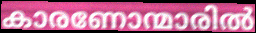
കാരണോന്മാരിൽ